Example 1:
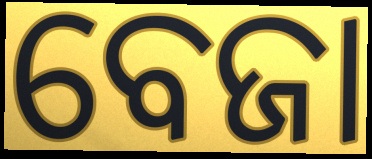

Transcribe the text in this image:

ବେଜା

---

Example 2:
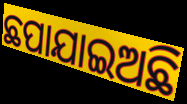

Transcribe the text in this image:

ଛପାଯାଇଅଛି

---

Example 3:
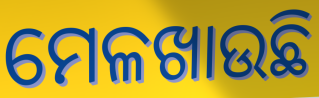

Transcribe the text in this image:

ମେଳଖାଉଛି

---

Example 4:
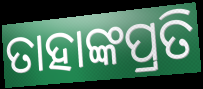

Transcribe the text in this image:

ତାହାଙ୍କପ୍ରତି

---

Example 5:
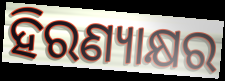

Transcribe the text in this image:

ହିରଣ୍ୟାକ୍ଷର